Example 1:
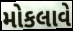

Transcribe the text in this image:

મોકલાવે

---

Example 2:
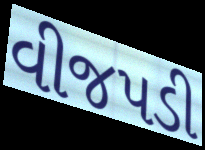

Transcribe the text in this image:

વીજપડી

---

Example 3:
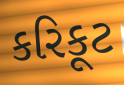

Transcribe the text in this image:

કરિકૂટ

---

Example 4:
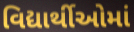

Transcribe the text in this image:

વિદ્યાર્થીઓમાં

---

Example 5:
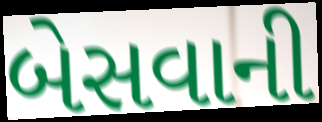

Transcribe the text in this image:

બેસવાની